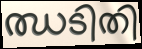
ഝടിതി